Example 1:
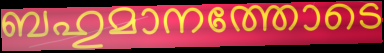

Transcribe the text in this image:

ബഹുമാനത്തോടെ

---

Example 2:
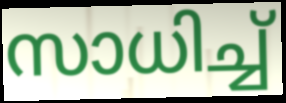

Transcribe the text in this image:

സാധിച്ച്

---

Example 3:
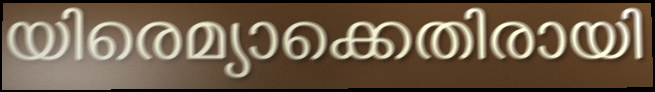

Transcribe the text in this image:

യിരെമ്യാക്കെതിരായി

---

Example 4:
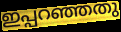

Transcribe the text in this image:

ഇപ്പറഞ്ഞതു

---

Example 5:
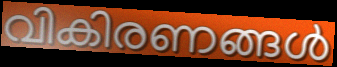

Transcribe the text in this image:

വികിരണങ്ങൾ